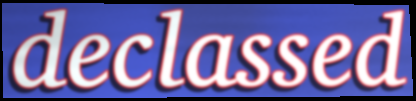
declassed